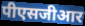
पीएसजीआर